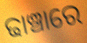
ଢାଞ୍ଚାରେ